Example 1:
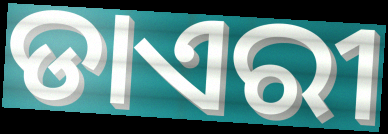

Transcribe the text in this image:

ଡାଏରୀ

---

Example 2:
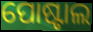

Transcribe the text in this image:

ପୋଷ୍ଟାଲ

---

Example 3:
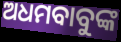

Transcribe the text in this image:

ଅଧମବାବୁଙ୍କ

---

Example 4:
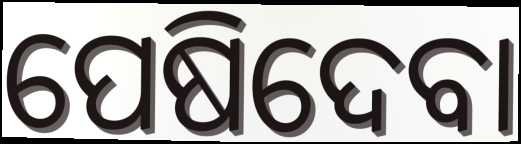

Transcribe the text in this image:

ପେଷିଦେବା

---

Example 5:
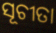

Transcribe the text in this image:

ସୂଚୀତା